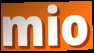
mio